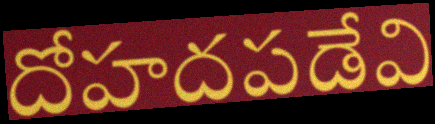
దోహదపడేవి